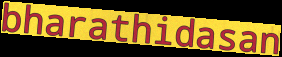
bharathidasan